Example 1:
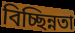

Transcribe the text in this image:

বিচ্ছিন্নতা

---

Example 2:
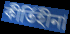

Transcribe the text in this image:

কীর্তিহীনা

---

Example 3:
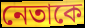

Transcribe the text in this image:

নেতাকে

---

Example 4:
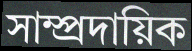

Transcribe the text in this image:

সাম্প্রদায়িক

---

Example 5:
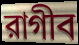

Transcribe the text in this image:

রাগীব